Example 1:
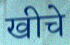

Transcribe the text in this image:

खीचे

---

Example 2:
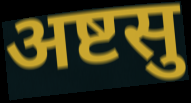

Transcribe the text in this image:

अष्टसु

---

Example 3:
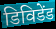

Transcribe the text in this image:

डिविडेंड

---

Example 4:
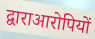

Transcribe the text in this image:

द्वाराआरोपियों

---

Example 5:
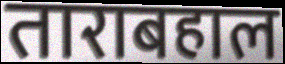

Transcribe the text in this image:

ताराबहाल